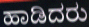
ಹಾಡಿದರು